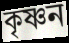
কৃষ্ণন